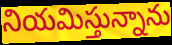
నియమిస్తున్నాను